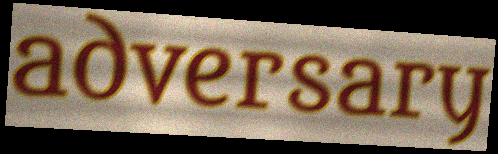
adversary